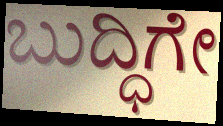
ಬುದ್ಧಿಗೇ